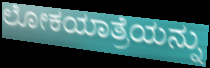
ಲೋಕಯಾತ್ರೆಯನ್ನು